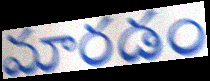
మారడం